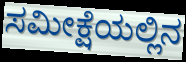
ಸಮೀಕ್ಷೆಯಲ್ಲಿನ